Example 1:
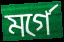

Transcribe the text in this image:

মর্গে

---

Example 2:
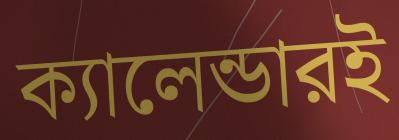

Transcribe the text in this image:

ক্যালেন্ডারই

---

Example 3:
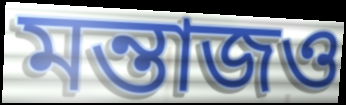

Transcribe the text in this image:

মন্তাজও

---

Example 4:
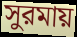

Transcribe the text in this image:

সুরমায়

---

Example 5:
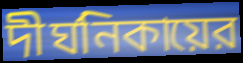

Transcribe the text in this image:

দীর্ঘনিকায়ের